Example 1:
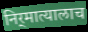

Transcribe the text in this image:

निर्मात्यालाच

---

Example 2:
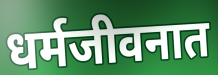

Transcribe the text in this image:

धर्मजीवनात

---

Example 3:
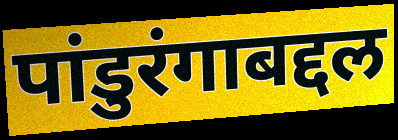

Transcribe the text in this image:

पांडुरंगाबद्दल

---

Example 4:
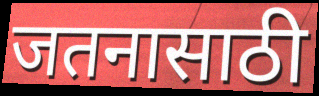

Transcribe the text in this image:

जतनासाठी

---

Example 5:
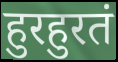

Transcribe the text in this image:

हुरहुरतं